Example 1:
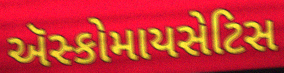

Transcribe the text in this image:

ઍસ્કોમાયસેટિસ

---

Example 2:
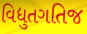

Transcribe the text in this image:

વિદ્યુતગતિજ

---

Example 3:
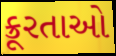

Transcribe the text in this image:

ક્રૂરતાઓ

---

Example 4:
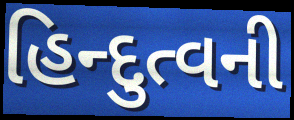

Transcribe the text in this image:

હિન્દુત્વની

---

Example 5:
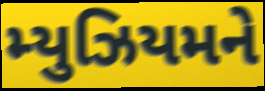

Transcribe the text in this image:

મ્યુઝિયમને